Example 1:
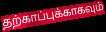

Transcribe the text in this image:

தற்காப்புக்காகவும்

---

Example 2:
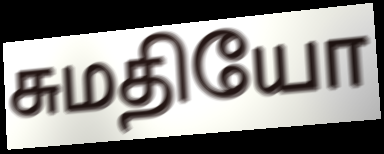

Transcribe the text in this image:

சுமதியோ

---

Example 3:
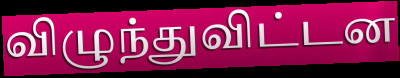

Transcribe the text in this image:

விழுந்துவிட்டன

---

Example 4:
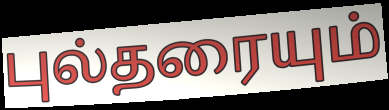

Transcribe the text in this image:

புல்தரையும்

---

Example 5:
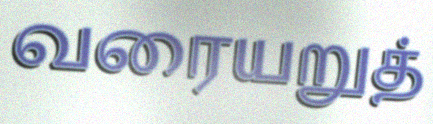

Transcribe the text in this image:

வரையறுத்